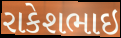
રાકેશભાઇ